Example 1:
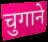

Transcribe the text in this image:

चुगाने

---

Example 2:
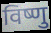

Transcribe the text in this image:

विष्णु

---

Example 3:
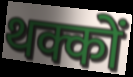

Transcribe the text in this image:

थक्कों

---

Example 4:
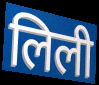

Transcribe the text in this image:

लिली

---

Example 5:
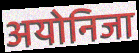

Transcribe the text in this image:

अयोनिजा